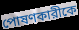
পোষণকারীকে